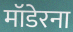
मॉडेरना